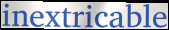
inextricable